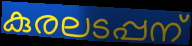
കുരലടപ്പന്